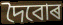
দৈবোৰ